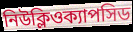
নিউক্লিওক্যাপসিড